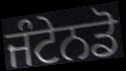
ਜੰਟੇਨਡੋ